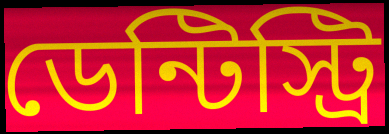
ডেন্টিস্ট্রি